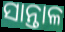
ସାନ୍ତାଳ